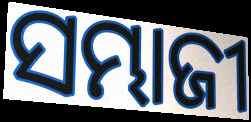
ସମ୍ଭାଜୀ